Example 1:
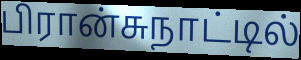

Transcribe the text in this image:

பிரான்சுநாட்டில்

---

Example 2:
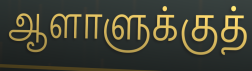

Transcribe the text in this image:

ஆளாளுக்குத்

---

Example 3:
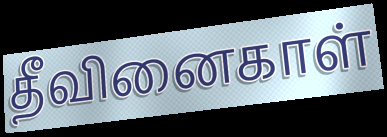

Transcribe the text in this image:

தீவினைகாள்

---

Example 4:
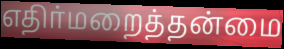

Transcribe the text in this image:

எதிர்மறைத்தன்மை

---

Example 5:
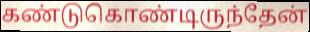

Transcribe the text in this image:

கண்டுகொண்டிருந்தேன்